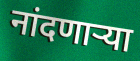
नांदणाऱ्या